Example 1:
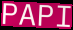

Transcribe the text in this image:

PAPI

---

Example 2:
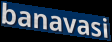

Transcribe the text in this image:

banavasi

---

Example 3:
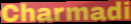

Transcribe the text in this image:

Charmadi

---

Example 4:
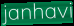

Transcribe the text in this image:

janhavi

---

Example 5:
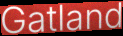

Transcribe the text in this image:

Gatland